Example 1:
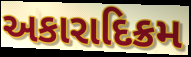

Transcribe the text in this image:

અકારાદિક્રમ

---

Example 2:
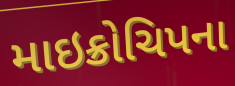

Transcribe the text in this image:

માઇક્રોચિપના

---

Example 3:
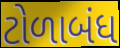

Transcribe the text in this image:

ટોળાબંધ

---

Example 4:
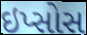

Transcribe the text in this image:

ઇપ્સોસ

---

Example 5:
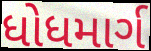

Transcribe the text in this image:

ધોધમાર્ગ